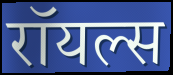
रॉयल्स